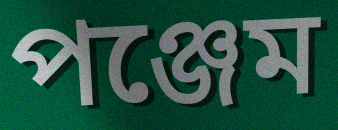
পঞ্জেম